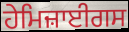
ਹੇਮਿਜ਼ਾਈਗਸ